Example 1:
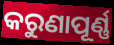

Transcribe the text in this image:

କରୁଣାପୂର୍ଣ୍ଣ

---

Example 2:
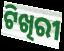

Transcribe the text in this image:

ଟିଖିରୀ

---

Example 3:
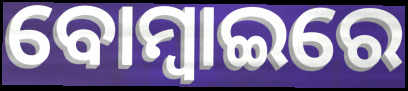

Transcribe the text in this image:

ବୋମ୍ୱାଇରେ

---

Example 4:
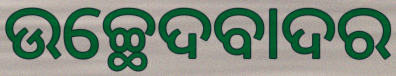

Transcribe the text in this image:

ଉଚ୍ଛେଦବାଦର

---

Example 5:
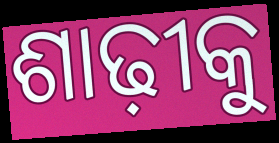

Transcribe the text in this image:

ଶାଢ଼ୀକୁ